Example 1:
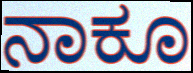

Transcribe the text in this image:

ನಾಕೂ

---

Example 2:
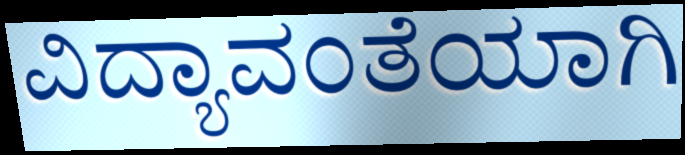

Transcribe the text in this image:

ವಿದ್ಯಾವಂತೆಯಾಗಿ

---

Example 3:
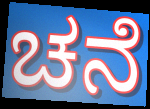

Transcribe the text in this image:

ಚನೆ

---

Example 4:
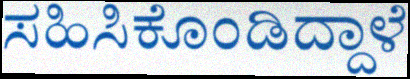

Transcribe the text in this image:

ಸಹಿಸಿಕೊಂಡಿದ್ದಾಳೆ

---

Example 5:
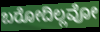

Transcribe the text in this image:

ಬರೋದಿಲ್ಲವೋ